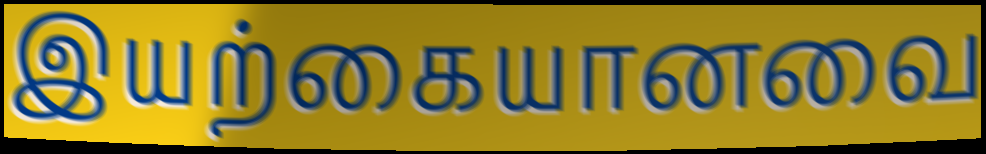
இயற்கையானவை